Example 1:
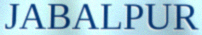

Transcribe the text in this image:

JABALPUR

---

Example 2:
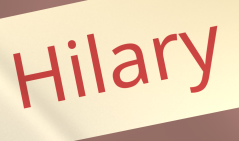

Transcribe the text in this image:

Hilary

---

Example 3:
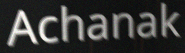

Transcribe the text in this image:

Achanak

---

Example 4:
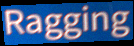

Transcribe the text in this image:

Ragging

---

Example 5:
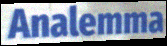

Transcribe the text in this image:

Analemma